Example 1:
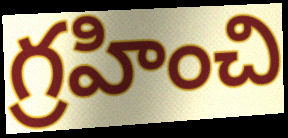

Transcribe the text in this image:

గ్రహించి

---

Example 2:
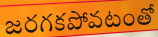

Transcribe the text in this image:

జరగకపోవటంతో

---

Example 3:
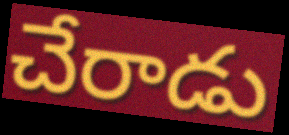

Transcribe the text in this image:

చేరాడు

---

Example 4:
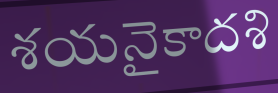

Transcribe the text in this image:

శయనైకాదశి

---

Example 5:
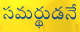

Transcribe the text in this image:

సమర్థుడనే